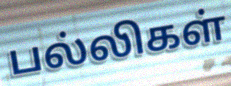
பல்லிகள்